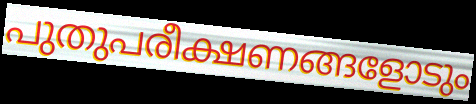
പുതുപരീക്ഷണങ്ങളോടും